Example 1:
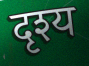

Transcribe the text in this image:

दृश्य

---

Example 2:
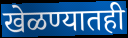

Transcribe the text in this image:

खेळण्यातही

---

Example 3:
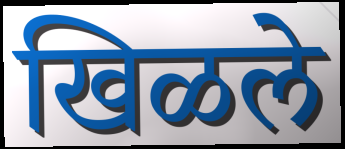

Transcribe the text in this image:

खिळले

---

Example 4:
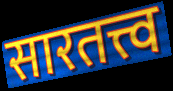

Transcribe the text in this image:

सारतत्त्व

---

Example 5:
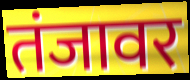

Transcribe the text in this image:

तंजावर